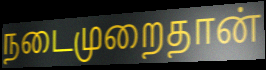
நடைமுறைதான்